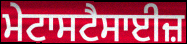
ਮੇਟਾਸਟੈਸਾਈਜ਼